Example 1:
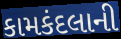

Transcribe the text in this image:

કામકંદલાની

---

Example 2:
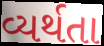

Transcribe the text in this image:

વ્યર્થતા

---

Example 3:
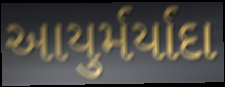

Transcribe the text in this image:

આયુર્મર્યાદા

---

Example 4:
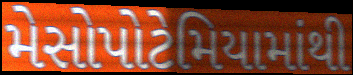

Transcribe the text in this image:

મેસોપોટેમિયામાંથી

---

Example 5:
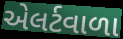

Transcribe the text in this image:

એલર્ટવાળા